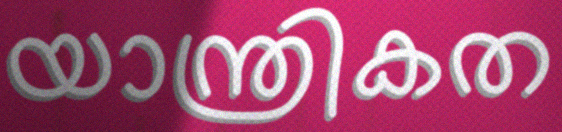
യാന്ത്രികത